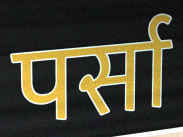
पर्सा